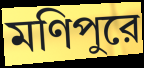
মণিপুরে